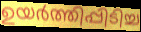
ഉയർത്തിപ്പിടിച്ച